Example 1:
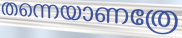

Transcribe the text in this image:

തന്നെയാണത്രേ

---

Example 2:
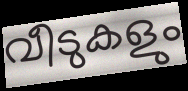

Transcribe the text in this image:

വീടുകളും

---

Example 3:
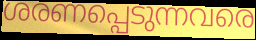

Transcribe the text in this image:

ശരണപ്പെടുന്നവരെ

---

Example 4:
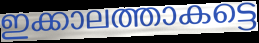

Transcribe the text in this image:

ഇക്കാലത്താകട്ടെ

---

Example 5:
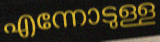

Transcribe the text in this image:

എന്നോടുള്ള